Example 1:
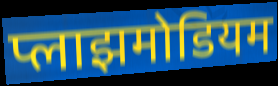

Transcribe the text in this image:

प्लाझमोडियम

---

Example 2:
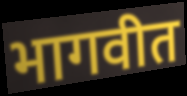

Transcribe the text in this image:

भागवीत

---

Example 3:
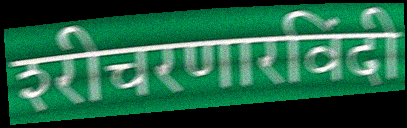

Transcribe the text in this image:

श्रीचरणारविंदी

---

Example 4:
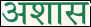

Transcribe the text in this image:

अशास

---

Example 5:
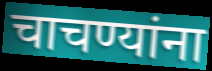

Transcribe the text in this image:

चाचण्यांना